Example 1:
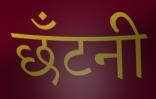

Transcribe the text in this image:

छँटनी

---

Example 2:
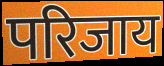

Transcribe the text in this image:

परिजाय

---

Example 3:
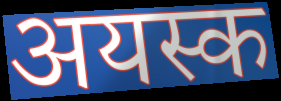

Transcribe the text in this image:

अयस्क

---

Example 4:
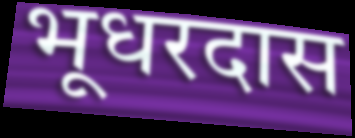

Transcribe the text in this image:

भूधरदास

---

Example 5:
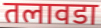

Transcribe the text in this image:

तलावडा